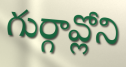
గుర్గావ్లోని